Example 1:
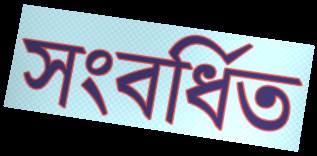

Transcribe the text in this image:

সংবর্ধিত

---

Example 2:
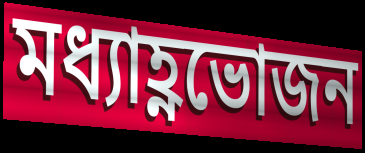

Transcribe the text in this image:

মধ্যাহ্ণভোজন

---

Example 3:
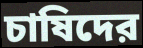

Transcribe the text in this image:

চাষিদের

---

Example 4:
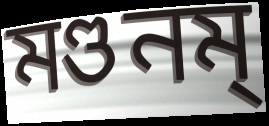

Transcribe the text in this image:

মণ্ডনম্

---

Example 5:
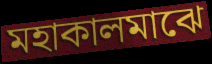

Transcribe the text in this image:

মহাকালমাঝে